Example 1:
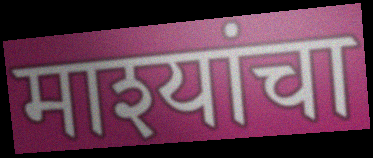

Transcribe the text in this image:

माश्यांचा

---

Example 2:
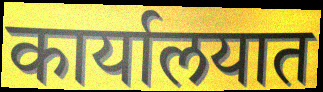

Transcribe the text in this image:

कार्यालयात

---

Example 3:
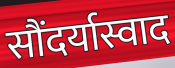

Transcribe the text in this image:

सौंदर्यास्वाद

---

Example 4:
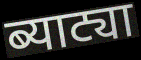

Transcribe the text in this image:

ब्याट्या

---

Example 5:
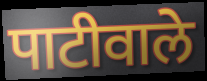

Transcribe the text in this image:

पाटीवाले